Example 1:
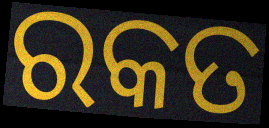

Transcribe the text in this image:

ରକତ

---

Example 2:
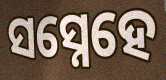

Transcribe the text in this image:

ସସ୍ନେହେ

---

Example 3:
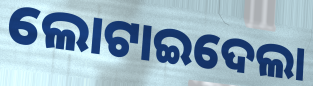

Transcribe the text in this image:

ଲୋଟାଇଦେଲା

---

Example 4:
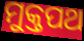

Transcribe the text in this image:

ମୁକ୍ତପଥ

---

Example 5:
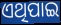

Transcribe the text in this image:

ଏଥିପାଇ